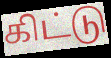
கிட்டு